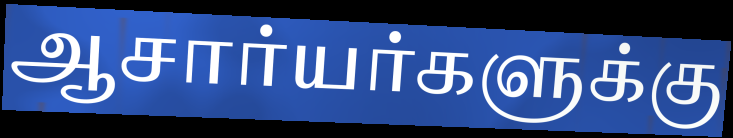
ஆசார்யர்களுக்கு